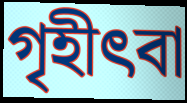
গৃহীৎবা